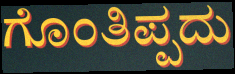
ಗೊಂತಿಪ್ಪದು